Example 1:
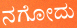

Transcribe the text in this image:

ನಗೋದು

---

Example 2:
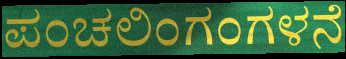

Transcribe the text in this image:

ಪಂಚಲಿಂಗಂಗಳನೆ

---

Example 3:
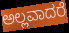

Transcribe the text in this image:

ಅಲ್ಲವಾದರೆ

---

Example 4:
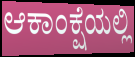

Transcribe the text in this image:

ಆಕಾಂಕ್ಷೆಯಲ್ಲಿ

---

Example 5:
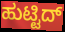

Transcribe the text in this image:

ಹುಟ್ಟಿದ್